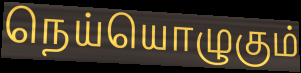
நெய்யொழுகும்